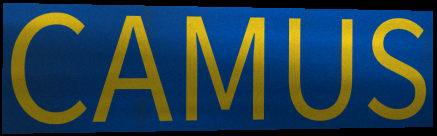
CAMUS